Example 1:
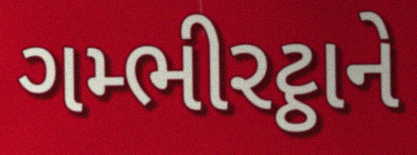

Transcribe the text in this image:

ગમ્ભીરટ્ઠાને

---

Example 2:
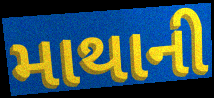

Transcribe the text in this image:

માથાની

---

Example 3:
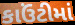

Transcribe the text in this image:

કાઉંટીમાં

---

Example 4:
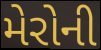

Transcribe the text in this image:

મેરોની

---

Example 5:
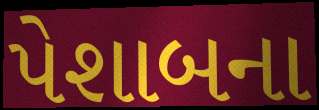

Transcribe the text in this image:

પેશાબના